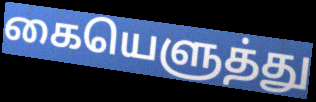
கையெளுத்து